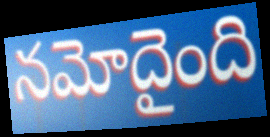
నమోదైంది